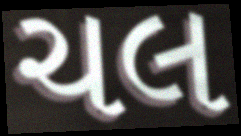
ચલ